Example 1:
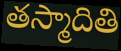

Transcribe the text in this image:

తస్మాదితి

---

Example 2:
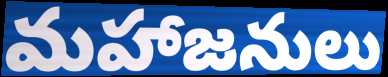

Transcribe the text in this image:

మహాజనులు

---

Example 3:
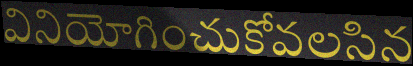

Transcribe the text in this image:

వినియోగించుకోవలసిన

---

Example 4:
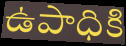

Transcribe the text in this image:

ఉపాధికి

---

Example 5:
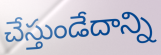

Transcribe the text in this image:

చేస్తుండేదాన్ని